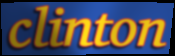
clinton